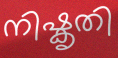
നിഷ്കൃതി